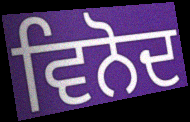
ਵਿਨੋਦ